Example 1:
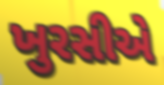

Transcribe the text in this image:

ખુરસીએ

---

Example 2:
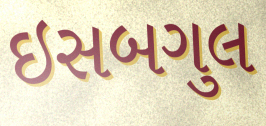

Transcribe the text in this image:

ઇસબગુલ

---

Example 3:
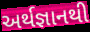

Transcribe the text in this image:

અર્થજ્ઞાનથી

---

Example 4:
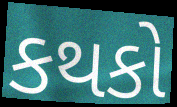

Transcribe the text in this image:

કથકો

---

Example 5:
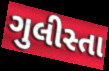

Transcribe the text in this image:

ગુલીસ્તા